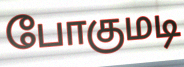
போகுமடி